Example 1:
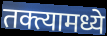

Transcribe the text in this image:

तक्‍त्यामध्ये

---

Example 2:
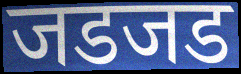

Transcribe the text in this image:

जडजड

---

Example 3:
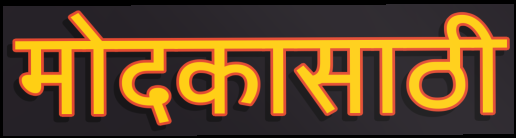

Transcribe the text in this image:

मोदकासाठी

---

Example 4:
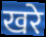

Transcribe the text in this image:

खरे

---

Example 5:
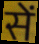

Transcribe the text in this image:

सें